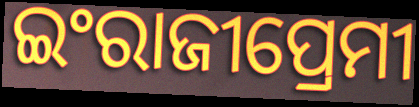
ଇଂରାଜୀପ୍ରେମୀ